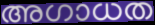
അഗാധത